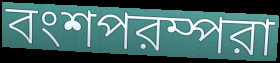
বংশপরম্পরা